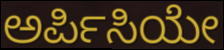
ಅರ್ಪಿಸಿಯೇ